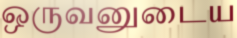
ஒருவனுடைய